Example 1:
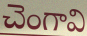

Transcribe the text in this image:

చెంగావి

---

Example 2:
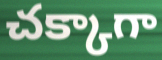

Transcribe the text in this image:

చక్కాగా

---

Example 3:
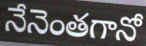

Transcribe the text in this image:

నేనెంతగానో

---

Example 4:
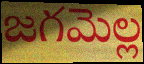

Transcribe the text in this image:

జగమెల్ల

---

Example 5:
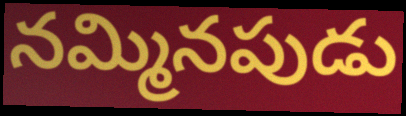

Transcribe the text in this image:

నమ్మినపుడు